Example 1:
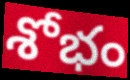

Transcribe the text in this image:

శోభం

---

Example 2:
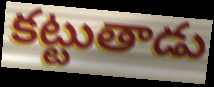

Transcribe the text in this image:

కట్టుతాడు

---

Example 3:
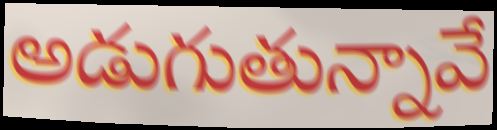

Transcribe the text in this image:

అడుగుతున్నావే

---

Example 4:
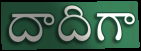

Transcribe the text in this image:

దాదిగా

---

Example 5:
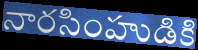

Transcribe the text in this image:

నారసింహుడికి